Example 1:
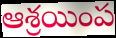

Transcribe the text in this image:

ఆశ్రయింప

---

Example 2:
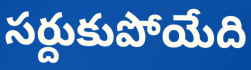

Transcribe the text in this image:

సర్దుకుపోయేది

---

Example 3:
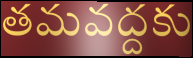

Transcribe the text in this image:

తమవద్దకు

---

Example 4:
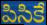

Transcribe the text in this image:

పిసికే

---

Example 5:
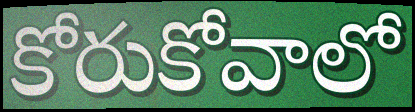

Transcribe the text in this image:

కోరుకోవాలో